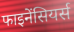
फाइनेंसियर्स